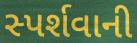
સ્પર્શવાની